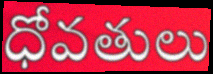
ధోవతులు